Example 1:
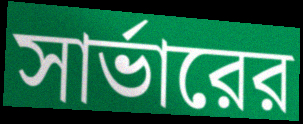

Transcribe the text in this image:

সার্ভারের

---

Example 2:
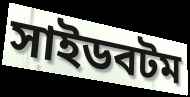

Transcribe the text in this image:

সাইডবটম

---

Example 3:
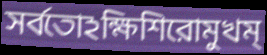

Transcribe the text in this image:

সর্বতোঽক্ষিশিরোমুখম্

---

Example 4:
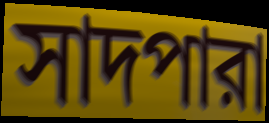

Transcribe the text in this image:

সাদপারা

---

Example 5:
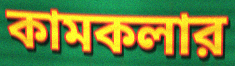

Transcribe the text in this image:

কামকলার